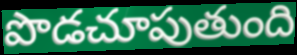
పొడచూపుతుంది